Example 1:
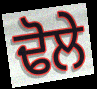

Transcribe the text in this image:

ਢੋਲੇ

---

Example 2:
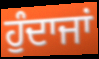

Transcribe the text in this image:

ਹੁੰਦਾਜਾਂ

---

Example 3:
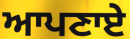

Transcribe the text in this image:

ਆਪਣਾਏ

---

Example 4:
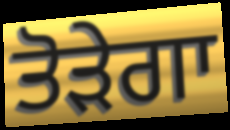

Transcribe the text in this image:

ਤੋੜੇਗਾ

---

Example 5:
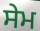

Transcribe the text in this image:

ਸੇਮ